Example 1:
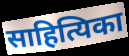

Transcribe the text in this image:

साहित्यिका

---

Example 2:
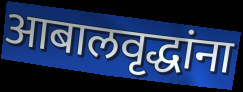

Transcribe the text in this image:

आबालवृद्धांना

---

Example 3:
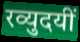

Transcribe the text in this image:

रव्युदयीं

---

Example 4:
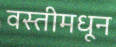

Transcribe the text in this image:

वस्तीमधून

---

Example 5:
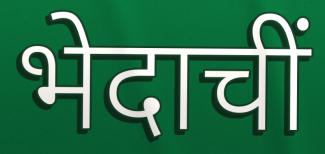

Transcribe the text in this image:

भेदाचीं